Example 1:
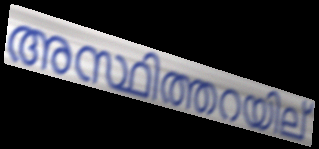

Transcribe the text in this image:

അസ്ഥിത്തറയില്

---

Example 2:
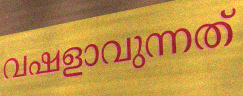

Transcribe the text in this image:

വഷളാവുന്നത്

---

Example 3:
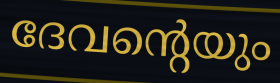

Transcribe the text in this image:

ദേവന്റെയും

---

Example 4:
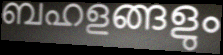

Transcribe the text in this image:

ബഹളങ്ങളും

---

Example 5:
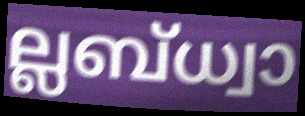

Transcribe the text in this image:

ല്ലബ്ധ്വാ